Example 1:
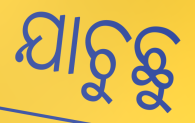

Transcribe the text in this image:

ଯାଚୁଛୁ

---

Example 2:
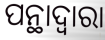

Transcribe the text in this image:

ପନ୍ଥାଦ୍ୱାରା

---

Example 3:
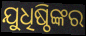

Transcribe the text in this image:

ଯୁଧିଷ୍ଠିଙ୍କର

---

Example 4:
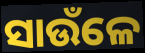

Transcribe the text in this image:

ସାଉଁଳେ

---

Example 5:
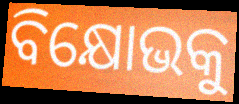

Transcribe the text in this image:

ବିକ୍ଷୋଭକୁ